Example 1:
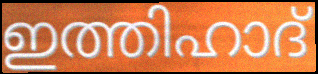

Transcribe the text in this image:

ഇത്തിഹാദ്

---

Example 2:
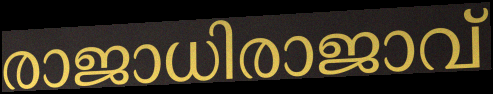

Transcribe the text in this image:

രാജാധിരാജാവ്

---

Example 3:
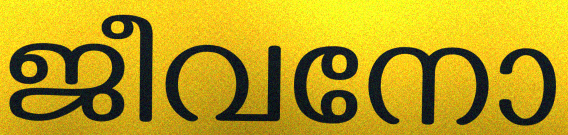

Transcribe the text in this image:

ജീവനോ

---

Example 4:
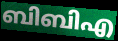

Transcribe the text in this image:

ബിബിഎ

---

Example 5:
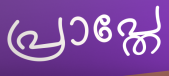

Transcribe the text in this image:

പ്രാപ്തേ